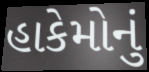
હાકેમોનું